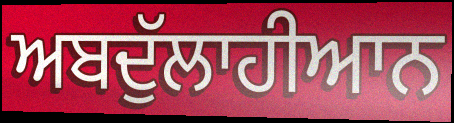
ਅਬਦੁੱਲਾਹੀਆਨ